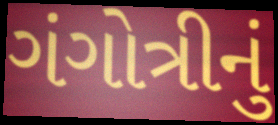
ગંગોત્રીનું